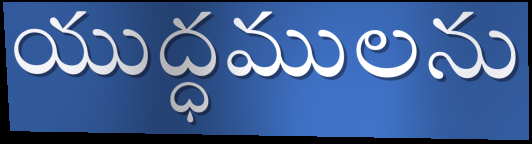
యుద్ధములను